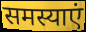
समस्याएं